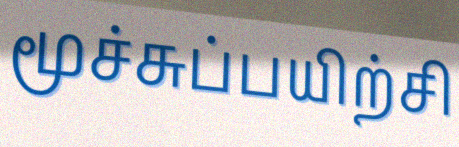
மூச்சுப்பயிற்சி